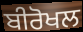
ਬੀਰੋਖਲ